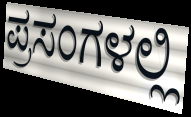
ಪ್ರಸಂಗಳಲ್ಲಿ